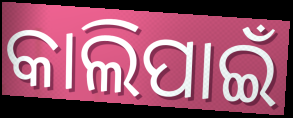
କାଲିପାଇଁ